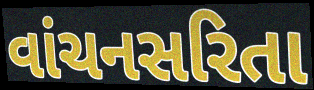
વાંચનસરિતા